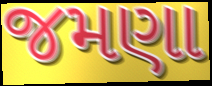
જમણા